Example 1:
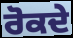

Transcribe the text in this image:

ਰੋਕਦੇ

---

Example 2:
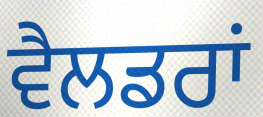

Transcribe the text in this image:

ਵੈਲਡਰਾਂ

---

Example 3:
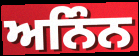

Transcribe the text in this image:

ਅਨਿੰਨ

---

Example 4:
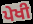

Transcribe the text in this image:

ਪੇਖੀ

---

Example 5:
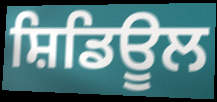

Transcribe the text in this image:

ਸ਼ਿਡਿਊਲ